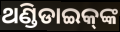
ଥଣ୍ଡିଡାଇକ୍‌ଙ୍କ